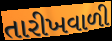
તારીખવાળી